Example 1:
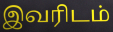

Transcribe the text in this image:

இவரிடம்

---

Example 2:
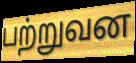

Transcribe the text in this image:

பற்றுவன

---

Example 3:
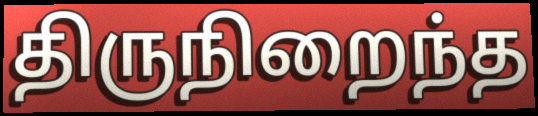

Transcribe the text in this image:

திருநிறைந்த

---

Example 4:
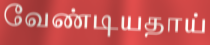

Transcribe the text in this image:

வேண்டியதாய்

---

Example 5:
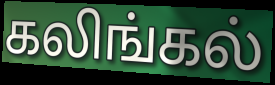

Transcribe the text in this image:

கலிங்கல்